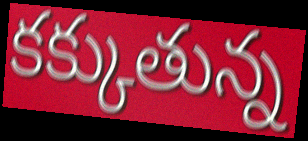
కక్కుతున్న